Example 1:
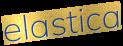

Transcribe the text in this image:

elastica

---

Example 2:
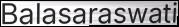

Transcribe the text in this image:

Balasaraswati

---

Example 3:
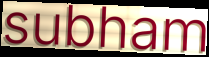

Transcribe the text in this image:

subham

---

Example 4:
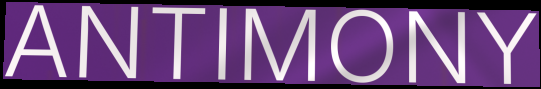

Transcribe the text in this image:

ANTIMONY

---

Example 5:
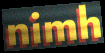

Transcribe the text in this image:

nimh